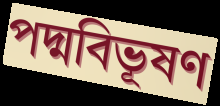
পদ্মবিভূষণ